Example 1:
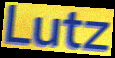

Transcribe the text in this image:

Lutz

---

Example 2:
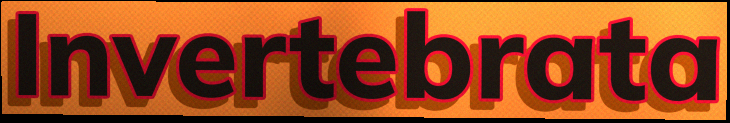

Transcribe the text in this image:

Invertebrata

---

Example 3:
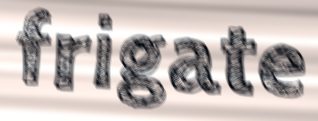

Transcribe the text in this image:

frigate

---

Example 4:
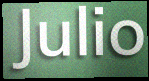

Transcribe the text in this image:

Julio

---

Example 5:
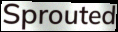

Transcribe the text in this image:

Sprouted